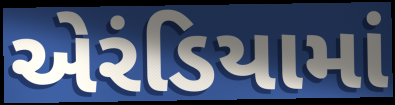
એરંડિયામાં